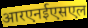
आरएनईएसएल